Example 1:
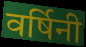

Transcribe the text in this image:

वर्षिनी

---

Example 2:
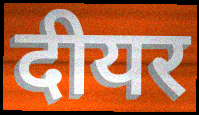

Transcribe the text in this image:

दीयर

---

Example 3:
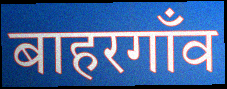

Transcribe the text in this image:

बाहरगाँव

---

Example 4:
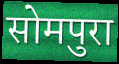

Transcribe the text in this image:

सोमपुरा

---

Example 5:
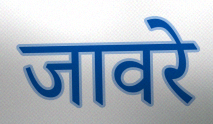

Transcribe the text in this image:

जावरे